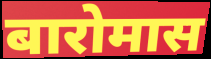
बारोमास